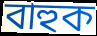
বাহুক